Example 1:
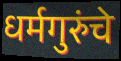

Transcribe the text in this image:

धर्मगुरुंचे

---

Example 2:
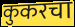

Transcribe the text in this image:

कुकरचा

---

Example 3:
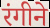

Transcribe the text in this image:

रंगीने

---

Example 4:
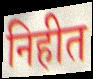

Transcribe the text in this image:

निहीत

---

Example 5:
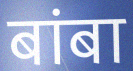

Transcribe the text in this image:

बांबा